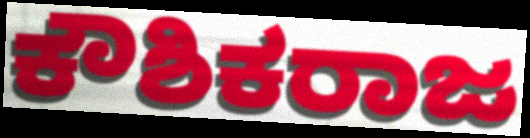
ಕೌಶಿಕರಾಜ